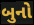
બુનો